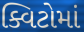
ક્વિટોમાં